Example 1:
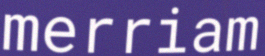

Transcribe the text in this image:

merriam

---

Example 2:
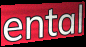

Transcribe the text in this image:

ental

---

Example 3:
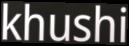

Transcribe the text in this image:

khushi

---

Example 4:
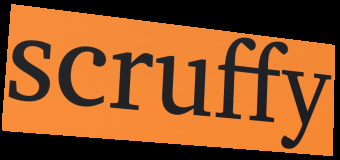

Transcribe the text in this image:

scruffy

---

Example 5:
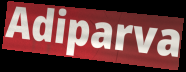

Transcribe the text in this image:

Adiparva